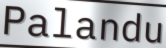
Palandu